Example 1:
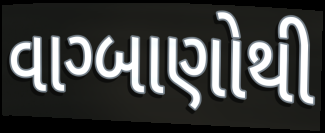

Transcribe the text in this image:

વાગ્બાણોથી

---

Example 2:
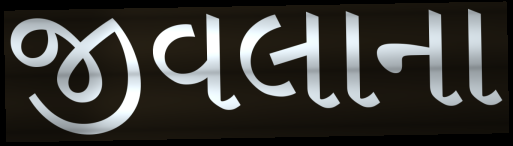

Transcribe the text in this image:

જીવલાના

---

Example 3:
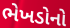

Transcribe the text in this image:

ભેખડોનો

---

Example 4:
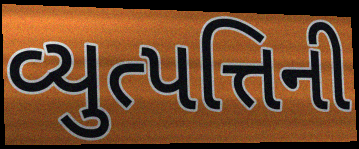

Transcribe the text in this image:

વ્યુત્પત્તિની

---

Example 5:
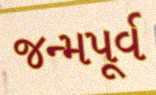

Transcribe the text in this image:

જન્મપૂર્વ